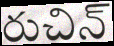
రుచిన్